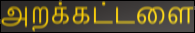
அறக்கட்டளை